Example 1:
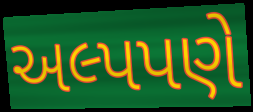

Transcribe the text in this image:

અલ્પપણે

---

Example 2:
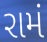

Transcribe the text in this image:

રામં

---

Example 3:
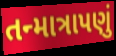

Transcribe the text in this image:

તન્માત્રાપણું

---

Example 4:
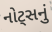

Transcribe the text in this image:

નોટ્સનું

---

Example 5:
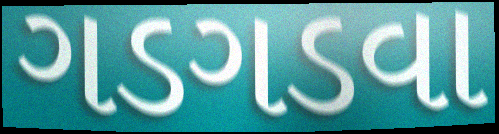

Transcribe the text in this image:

ગડગડવા